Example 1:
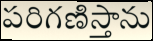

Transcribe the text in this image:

పరిగణిస్తాను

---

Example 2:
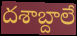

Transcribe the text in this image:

దశాబ్దాలే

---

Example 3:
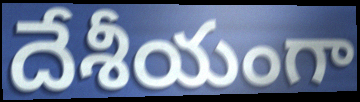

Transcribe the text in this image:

దేశీయంగా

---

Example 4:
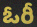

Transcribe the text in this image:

ఓరీ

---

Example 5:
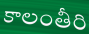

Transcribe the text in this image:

కాలంతీరి